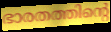
ഭാരതത്തിന്റെ